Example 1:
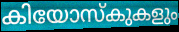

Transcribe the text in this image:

കിയോസ്കുകളും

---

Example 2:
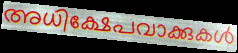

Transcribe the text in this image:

അധിക്ഷേപവാക്കുകൾ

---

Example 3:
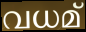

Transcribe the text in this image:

വധമ്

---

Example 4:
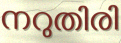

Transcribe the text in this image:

നറുതിരി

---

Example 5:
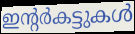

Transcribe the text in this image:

ഇന്റർകട്ടുകൾ